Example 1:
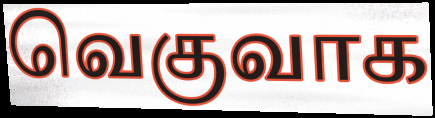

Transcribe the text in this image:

வெகுவாக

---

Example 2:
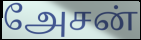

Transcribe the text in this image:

அேசன்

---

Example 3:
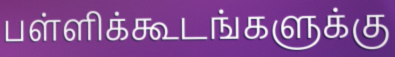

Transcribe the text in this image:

பள்ளிக்கூடங்களுக்கு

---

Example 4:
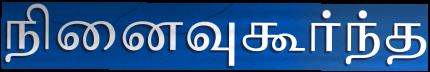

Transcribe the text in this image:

நினைவுகூர்ந்த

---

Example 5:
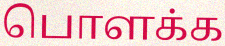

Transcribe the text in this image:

பொளக்க